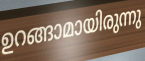
ഉറങ്ങാമായിരുന്നു